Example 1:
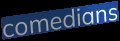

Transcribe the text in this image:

comedians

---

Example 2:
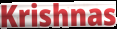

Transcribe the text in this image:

Krishnas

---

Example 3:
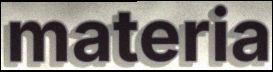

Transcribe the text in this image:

materia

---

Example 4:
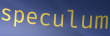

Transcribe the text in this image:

speculum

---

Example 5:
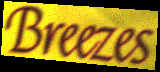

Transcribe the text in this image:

Breezes